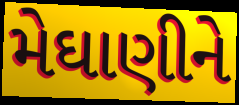
મેઘાણીને